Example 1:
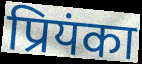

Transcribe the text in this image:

प्रियंका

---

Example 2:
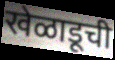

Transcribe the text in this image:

खेळाडूची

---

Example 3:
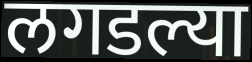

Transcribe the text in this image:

लगडल्या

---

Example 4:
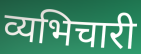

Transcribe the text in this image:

व्यभिचारी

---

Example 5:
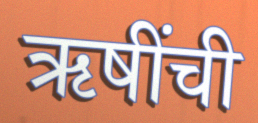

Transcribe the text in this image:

ऋषींची